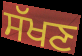
ਸੱਖਣ